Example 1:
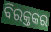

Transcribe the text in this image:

ବିରକ୍ତକର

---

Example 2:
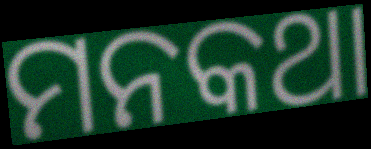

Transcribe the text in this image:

ମନକଥା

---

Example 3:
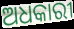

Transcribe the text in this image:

ଅଧକାରୀ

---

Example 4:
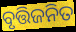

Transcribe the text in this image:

ବୃତ୍ତିଜନିତ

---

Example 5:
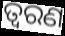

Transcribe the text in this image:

ତ୍ୱରଣ